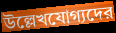
উল্লেখযোগ্যদের